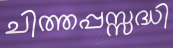
ചിത്തപ്പസ്സദ്ധി